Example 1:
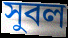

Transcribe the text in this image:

সুবল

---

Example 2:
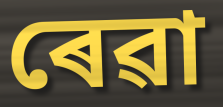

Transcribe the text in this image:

ৰেৱা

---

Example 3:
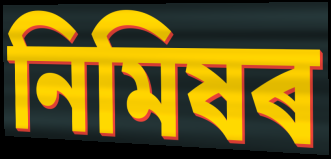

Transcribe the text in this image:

নিমিষৰ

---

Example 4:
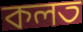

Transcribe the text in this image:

কলত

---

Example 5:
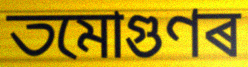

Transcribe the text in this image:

তমোগুণৰ